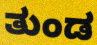
ತುಂಡ